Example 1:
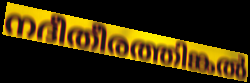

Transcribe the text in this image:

നദീതീരത്തിങ്കൽ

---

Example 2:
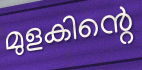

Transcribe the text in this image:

മുളകിന്റെ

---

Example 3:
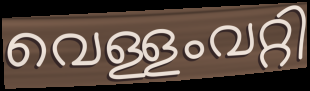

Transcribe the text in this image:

വെള്ളംവറ്റി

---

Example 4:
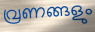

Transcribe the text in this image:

വ്രണങ്ങളും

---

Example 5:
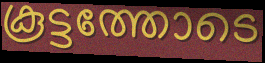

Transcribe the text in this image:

കൂട്ടത്തോടെ